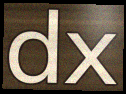
dx